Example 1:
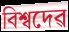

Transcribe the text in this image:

বিশ্বদেৱ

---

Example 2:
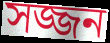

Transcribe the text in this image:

সজ্জন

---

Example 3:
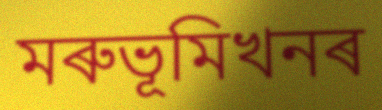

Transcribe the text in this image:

মৰুভূমিখনৰ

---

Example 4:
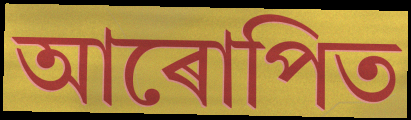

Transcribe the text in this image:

আৰোপিত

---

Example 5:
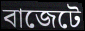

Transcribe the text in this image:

বাজেটে